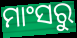
ମାଂସରୁ